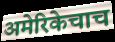
अमेरिकेचाच